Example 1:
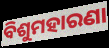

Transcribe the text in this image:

ବିଶୁମହାରଣା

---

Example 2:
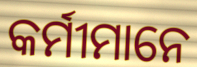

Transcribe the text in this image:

କର୍ମୀମାନେ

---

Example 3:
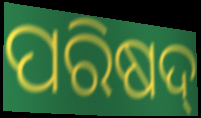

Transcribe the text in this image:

ପରିଷଦ୍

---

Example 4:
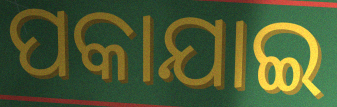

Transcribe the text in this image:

ପକାଯାଇ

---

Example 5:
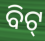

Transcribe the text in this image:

ବିଟ୍